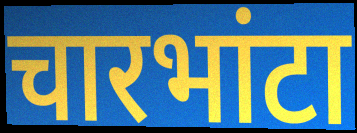
चारभांटा